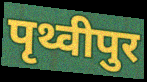
पृथ्वीपुर